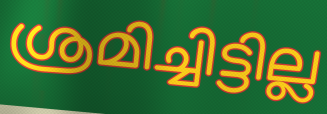
ശ്രമിച്ചിട്ടില്ല